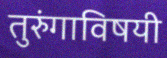
तुरुंगाविषयी